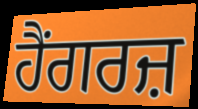
ਹੈਂਗਰਜ਼